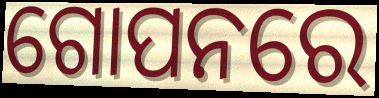
ଗୋପନରେ